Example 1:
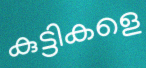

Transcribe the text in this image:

കുട്ടികളെ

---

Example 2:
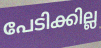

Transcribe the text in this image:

പേടിക്കില്ല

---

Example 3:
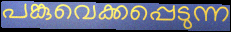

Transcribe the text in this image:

പങ്കുവെക്കപ്പെടുന്ന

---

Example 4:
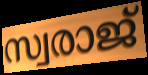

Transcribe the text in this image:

സ്വരാജ്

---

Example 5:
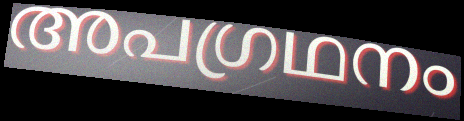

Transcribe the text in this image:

അപഗ്രഥനം